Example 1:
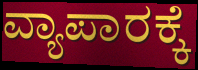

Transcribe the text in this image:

ವ್ಯಾಪಾರಕ್ಕೆ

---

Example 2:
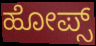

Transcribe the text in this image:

ಹೋಪ್ಸ್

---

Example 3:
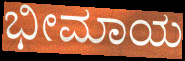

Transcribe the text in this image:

ಭೀಮಾಯ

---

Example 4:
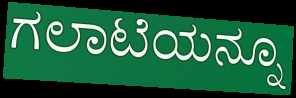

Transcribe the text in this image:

ಗಲಾಟೆಯನ್ನೂ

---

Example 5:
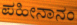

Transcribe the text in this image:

ಪಹೀನಾನಂ